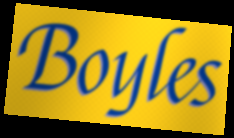
Boyles